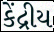
કેંદ્રીય